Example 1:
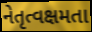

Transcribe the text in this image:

નેતૃત્વક્ષમતા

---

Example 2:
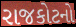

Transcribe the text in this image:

રાજકોટનો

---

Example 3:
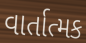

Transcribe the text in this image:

વાર્તાત્મક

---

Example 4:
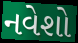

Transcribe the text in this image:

નવેશો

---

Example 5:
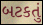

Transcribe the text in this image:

બટકતું